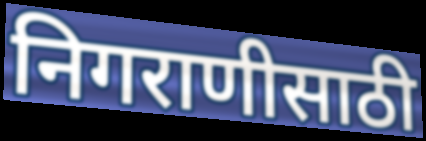
निगराणीसाठी